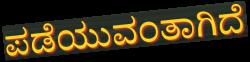
ಪಡೆಯುವಂತಾಗಿದೆ